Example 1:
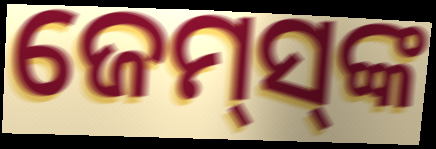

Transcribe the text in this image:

ଜେମ୍‌ସ୍‌ଙ୍କ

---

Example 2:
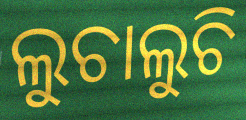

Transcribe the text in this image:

ଲୁଚାଲୁଚି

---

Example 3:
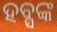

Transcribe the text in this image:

ହବ୍ସଙ୍କ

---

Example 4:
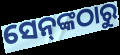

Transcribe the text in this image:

ସେନ୍‌ଙ୍କଠାରୁ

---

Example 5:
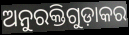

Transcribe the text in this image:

ଅନୁରକ୍ତିଗୁଡ଼ାକର